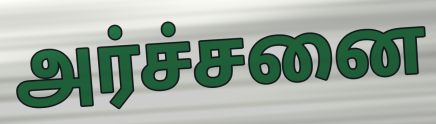
அர்ச்சனை